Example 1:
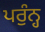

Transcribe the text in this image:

ਪਰੁੰਨ੍ਹ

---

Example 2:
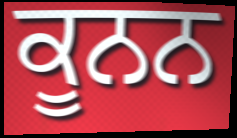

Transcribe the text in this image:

ਕੂਨਨ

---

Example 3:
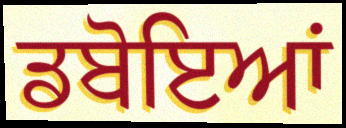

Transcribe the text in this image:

ਡਬੋਇਆਂ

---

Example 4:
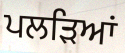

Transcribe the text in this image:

ਪਲੜਿਆਂ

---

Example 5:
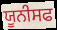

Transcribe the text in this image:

ਯੂਨੀਸਫ